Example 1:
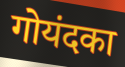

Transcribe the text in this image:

गोयंदका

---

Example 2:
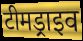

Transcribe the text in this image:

टीमड्राइव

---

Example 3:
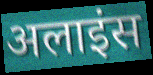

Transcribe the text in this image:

अलाइंस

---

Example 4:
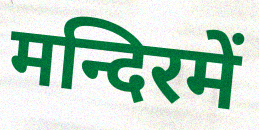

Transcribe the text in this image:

मन्दिरमें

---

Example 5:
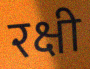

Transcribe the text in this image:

रक्षी